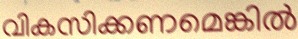
വികസിക്കണമെങ്കിൽ